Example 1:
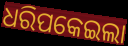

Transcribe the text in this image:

ଧରିପକେଇଲା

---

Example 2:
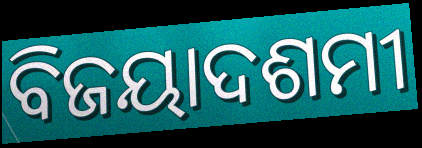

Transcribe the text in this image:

ବିଜୟାଦଶମୀ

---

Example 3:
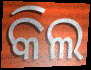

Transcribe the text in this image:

କିଲ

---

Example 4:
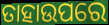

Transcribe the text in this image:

ତାହାଉପରେ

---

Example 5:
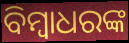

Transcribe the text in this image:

ବିମ୍ବାଧରଙ୍କ